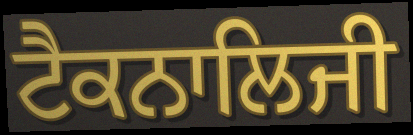
ਟੈਕਨਾਲਿਜੀ